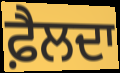
ਫ਼ੈਲਦਾ